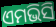
ଏମଭିସି